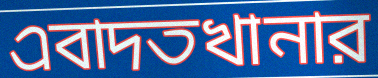
এবাদতখানার